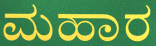
ಮಹಾರ